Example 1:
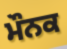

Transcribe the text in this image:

ਮੌਨਕ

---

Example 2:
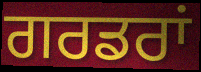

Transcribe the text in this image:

ਗਰਡਰਾਂ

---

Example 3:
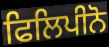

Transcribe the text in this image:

ਫਿਲਿਪੀਨੋ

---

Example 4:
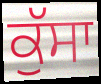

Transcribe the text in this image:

ਕੁੱਸਾ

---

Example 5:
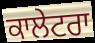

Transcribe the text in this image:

ਕਾਲੇਟਰਾ